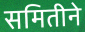
समितीने